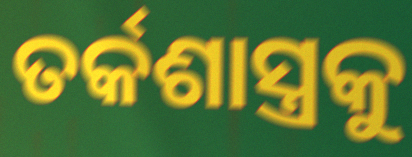
ତର୍କଶାସ୍ତ୍ରକୁ